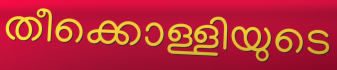
തീക്കൊള്ളിയുടെ